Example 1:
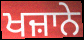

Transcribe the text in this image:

ਖਜ਼ਾਨੇ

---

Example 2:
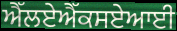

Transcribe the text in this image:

ਐੱਲਏਐੱਕਸਏਆਈ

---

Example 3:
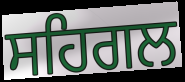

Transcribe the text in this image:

ਸਹਿਗਲ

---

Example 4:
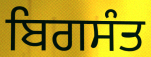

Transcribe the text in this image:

ਬਿਗਸੰਤ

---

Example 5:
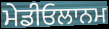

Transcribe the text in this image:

ਮੇਡੀਓਲਾਨਮ